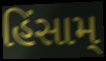
હિંસામ્